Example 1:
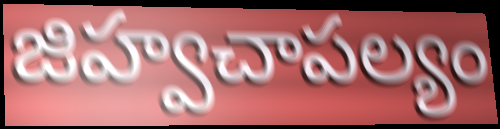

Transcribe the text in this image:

జిహ్వచాపల్యం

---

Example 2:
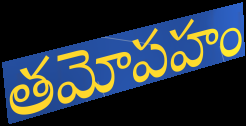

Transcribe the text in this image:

తమోపహం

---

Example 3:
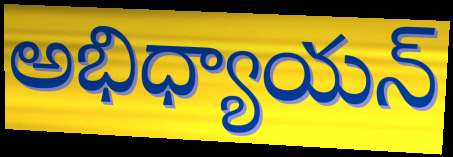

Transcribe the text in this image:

అభిధ్యాయన్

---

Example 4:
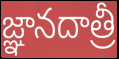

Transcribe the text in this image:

జ్ఞానదాత్రీ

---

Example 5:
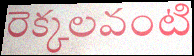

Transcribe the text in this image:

రెక్కలవంటి